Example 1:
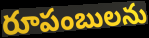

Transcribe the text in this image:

రూపంబులను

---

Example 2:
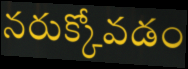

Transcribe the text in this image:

నరుక్కోవడం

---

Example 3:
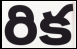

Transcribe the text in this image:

రిక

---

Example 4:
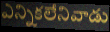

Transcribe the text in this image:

ఎన్నికలేనివాడు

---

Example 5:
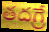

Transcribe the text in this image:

తదగ్రే